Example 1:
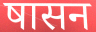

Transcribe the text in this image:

षासन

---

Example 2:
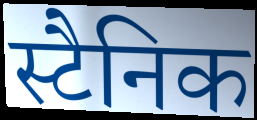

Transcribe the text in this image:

स्टैनिक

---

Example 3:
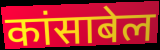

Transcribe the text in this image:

कांसाबेल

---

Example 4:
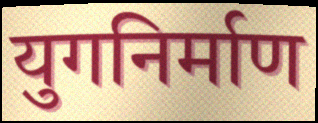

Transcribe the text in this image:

युगनिर्माण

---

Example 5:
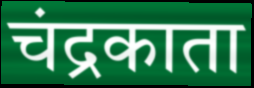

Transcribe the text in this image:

चंद्रकाता